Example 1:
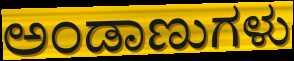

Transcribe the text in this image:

ಅಂಡಾಣುಗಳು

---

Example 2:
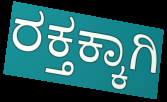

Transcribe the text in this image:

ರಕ್ತಕ್ಕಾಗಿ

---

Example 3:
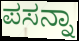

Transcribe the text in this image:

ಪಸನ್ನಾ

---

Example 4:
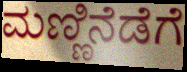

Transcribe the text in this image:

ಮಣ್ಣಿನೆಡೆಗೆ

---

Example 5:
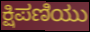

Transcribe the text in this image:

ಕ್ಷಿಪಣಿಯು